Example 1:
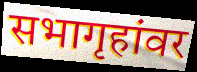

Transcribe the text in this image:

सभागृहांवर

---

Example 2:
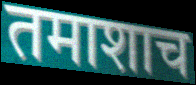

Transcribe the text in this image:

तमाशाच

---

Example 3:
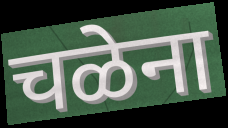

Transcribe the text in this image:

चळेना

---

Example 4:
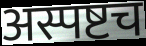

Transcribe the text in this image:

अस्पष्टच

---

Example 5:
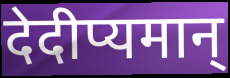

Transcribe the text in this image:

देदीप्यमान्